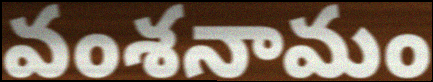
వంశనామం